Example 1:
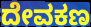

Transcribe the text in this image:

ದೇವಕಣ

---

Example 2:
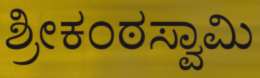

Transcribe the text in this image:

ಶ್ರೀಕಂಠಸ್ವಾಮಿ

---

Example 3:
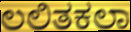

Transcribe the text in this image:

ಲಲಿತಕಲಾ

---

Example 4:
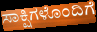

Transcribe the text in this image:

ಸಾಕ್ಷಿಗಳೊಂದಿಗೆ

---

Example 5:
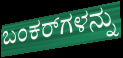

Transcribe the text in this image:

ಬಂಕರ್‌ಗಳನ್ನು